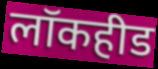
लॉकहीड